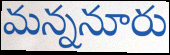
మన్ననూరు